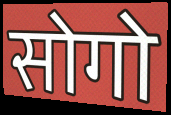
सोगो